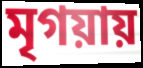
মৃগয়ায়